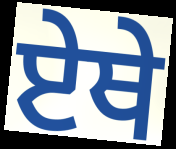
ਏਥੇ